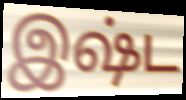
இஷ்ட